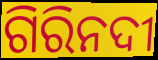
ଗିରିନଦୀ